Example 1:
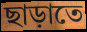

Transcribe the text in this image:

ছাড়াতে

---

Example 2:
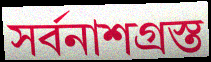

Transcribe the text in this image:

সর্বনাশগ্রস্ত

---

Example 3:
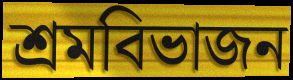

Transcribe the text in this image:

শ্রমবিভাজন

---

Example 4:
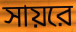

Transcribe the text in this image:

সায়রে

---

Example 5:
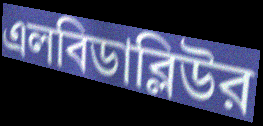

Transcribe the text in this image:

এলবিডাব্লিউর